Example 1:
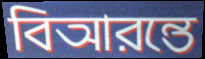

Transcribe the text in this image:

বিআরন্তে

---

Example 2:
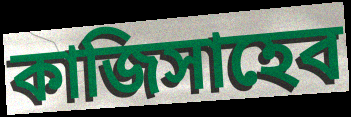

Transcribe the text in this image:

কাজিসাহেব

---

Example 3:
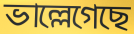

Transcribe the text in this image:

ভাল্লেগেছে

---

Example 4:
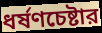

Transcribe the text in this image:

ধর্ষণচেষ্টার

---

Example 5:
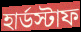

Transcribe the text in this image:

হার্ডস্টাফ